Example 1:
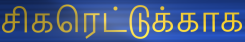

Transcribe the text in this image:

சிகரெட்டுக்காக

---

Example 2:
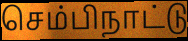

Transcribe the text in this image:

செம்பிநாட்டு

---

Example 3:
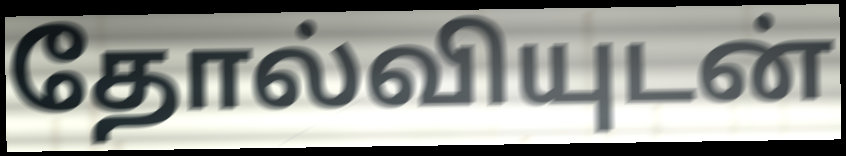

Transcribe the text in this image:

தோல்வியுடன்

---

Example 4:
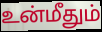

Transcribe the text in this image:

உன்மீதும்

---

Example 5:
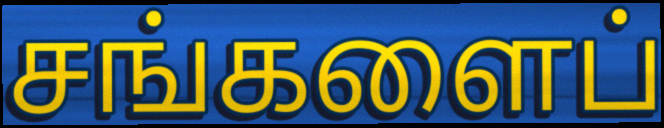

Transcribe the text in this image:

சங்களைப்